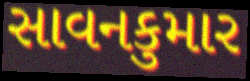
સાવનકુમાર